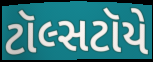
ટૉલ્સટૉયે